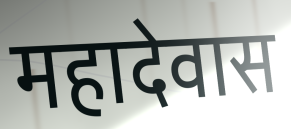
महादेवास